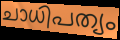
ചാധിപത്യം